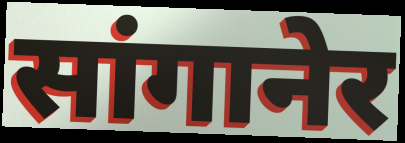
सांगानेर